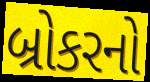
બ્રોકરનો